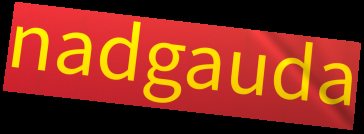
nadgauda